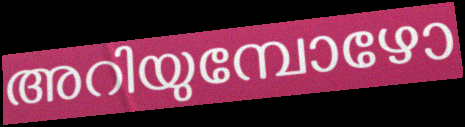
അറിയുമ്പോഴോ